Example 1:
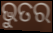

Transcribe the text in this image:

ଭୁତର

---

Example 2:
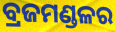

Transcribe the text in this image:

ବ୍ରଜମଣ୍ଡଳର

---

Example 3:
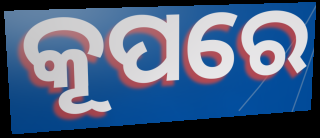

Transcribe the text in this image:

କୂପରେ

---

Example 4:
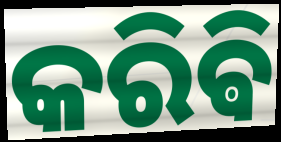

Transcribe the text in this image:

କରିଵି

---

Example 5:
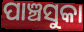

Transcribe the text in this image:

ପାଞ୍ଚସୁକା